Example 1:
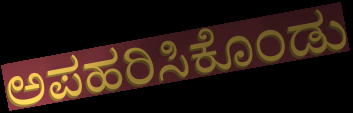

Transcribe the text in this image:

ಅಪಹರಿಸಿಕೊಂಡು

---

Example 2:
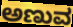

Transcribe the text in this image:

ಅಣುವ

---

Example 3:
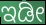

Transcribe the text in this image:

ಇಡೀ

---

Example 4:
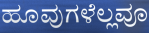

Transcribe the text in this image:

ಹೂವುಗಳೆಲ್ಲವೂ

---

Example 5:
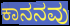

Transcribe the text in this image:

ಕಾನನವು